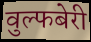
वुल्फबेरी